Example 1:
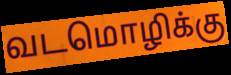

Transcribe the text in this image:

வடமொழிக்கு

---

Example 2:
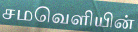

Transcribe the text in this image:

சமவெளியின்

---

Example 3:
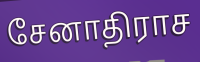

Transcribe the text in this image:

சேனாதிராச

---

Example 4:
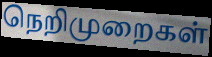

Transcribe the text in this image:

நெறிமுறைகள்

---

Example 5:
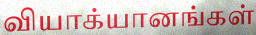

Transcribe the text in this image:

வியாக்யானங்கள்